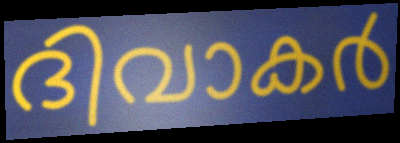
ദിവാകർ